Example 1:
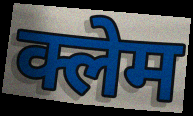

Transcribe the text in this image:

क्लेम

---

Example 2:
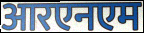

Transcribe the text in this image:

आरएनएम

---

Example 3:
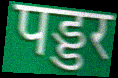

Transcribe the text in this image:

पड्डर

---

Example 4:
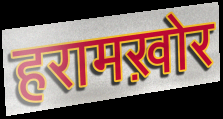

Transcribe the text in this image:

हरामख़ोर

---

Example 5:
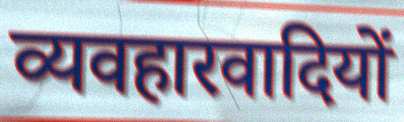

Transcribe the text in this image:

व्यवहारवादियों